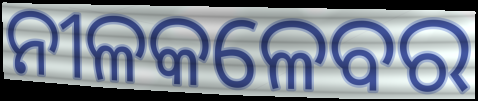
ନୀଳକଳେବର